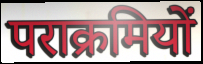
पराक्रमियों